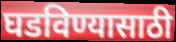
घडविण्यासाठी